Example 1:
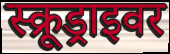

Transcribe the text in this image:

स्क्रूड्राइवर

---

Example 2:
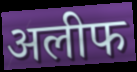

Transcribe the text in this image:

अलीफ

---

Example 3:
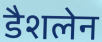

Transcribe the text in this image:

डैशलेन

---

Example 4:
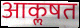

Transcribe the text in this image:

आकॢषत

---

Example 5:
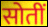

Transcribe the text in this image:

सोतीं